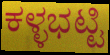
ಕಳ್ಳಭಟ್ಟಿ